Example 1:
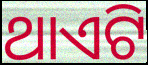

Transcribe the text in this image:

ଥାଏଟି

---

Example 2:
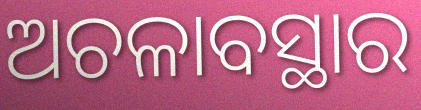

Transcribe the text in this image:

ଅଚଳାବସ୍ଥାର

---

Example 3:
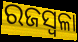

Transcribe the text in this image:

ରଜସ୍ବଳା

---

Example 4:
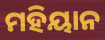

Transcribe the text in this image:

ମହିୟାନ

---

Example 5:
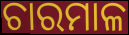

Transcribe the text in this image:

ଚାରମାଳ